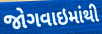
જોગવાઇમાંથી